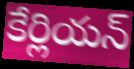
కేర్లియన్